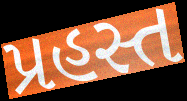
પ્રહસ્ત